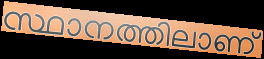
സ്ഥാനത്തിലാണ്